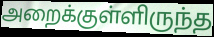
அறைக்குள்ளிருந்த